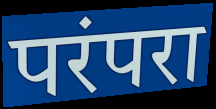
परंपरा